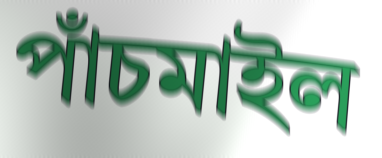
পাঁচমাইল